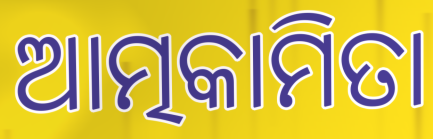
ଆତ୍ମକାମିତା